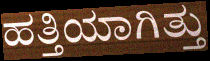
ಹತ್ತಿಯಾಗಿತ್ತು